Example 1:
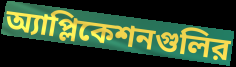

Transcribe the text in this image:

অ্যাপ্লিকেশনগুলির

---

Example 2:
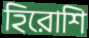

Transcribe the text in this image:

হিরোশি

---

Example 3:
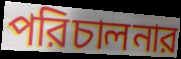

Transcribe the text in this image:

পরিচালনার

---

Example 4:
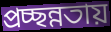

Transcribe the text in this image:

প্রচ্ছন্নতায়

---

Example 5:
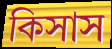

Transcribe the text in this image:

কিসাস